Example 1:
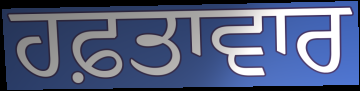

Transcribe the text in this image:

ਹਫ਼ਤਾਵਾਰ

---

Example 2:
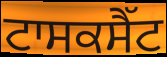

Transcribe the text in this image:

ਟਾਸਕਸੈੱਟ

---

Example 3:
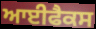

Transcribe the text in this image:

ਆਈਫੈਕਸ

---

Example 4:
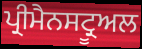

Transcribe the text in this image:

ਪ੍ਰੀਮੈਨਸਟ੍ਰੂਅਲ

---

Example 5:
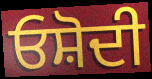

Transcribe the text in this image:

ਓਸ਼ੋਦੀ